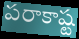
పరాకాష్ట